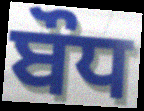
ਬੌਧ